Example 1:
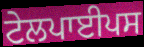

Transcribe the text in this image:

ਟੇਲਪਾਈਪਸ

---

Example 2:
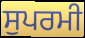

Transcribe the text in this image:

ਸੁਪਰਮੀ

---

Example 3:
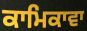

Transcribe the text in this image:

ਕਾਮਿਕਾਵਾ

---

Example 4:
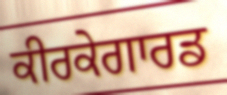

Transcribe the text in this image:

ਕੀਰਕੇਗਾਰਡ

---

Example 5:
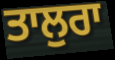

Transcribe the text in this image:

ਤਾਲੁਰਾ